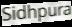
Sidhpura